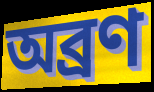
অব্রণ